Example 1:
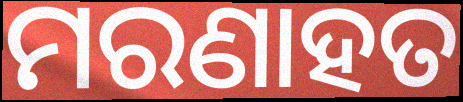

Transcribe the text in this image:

ମରଣାହତ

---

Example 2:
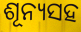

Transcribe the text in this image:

ଶୂନ୍ୟସହ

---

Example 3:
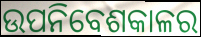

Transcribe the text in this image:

ଉପନିବେଶକାଳର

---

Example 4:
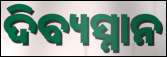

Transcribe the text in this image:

ଦିବ୍ୟସ୍ନାନ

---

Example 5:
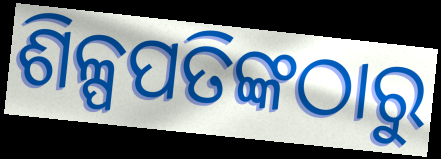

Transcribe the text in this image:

ଶିଳ୍ପପତିଙ୍କଠାରୁ